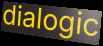
dialogic